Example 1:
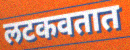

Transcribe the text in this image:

लटकवतात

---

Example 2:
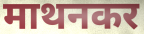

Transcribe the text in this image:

माथनकर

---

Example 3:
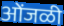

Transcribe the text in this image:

ओंजळी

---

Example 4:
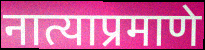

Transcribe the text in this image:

नात्याप्रमाणे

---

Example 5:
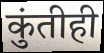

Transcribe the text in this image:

कुंतीही